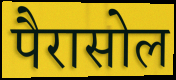
पैरासोल